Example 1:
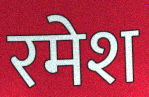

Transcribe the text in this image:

रमेश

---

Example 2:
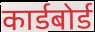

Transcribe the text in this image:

कार्डबोर्ड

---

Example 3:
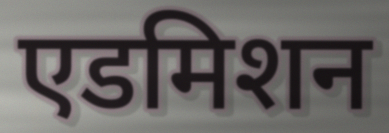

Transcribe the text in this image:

एडमिशन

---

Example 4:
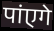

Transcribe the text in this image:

पांएगे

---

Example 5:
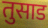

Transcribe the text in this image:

तुसाड